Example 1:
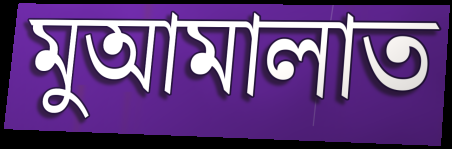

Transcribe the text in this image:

মুআমালাত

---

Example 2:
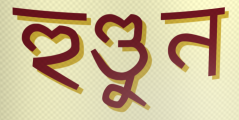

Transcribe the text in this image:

হুণ্ডুন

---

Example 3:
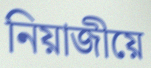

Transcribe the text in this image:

নিয়াজীয়ে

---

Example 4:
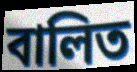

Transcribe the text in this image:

বালিত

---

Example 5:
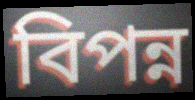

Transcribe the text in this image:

বিপন্ন